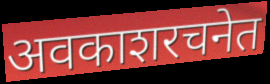
अवकाशरचनेत